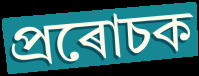
প্ৰৰোচক